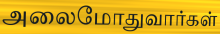
அலைமோதுவார்கள்